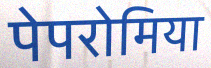
पेपरोमिया